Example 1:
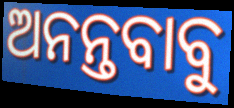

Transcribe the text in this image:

ଅନନ୍ତବାବୁ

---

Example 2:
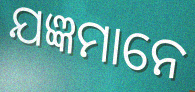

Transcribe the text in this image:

ଯଜ୍ଞମାନେ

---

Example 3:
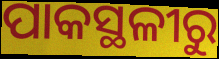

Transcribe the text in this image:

ପାକସ୍ଥଳୀରୁ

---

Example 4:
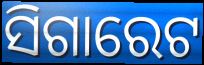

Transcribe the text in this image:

ସିଗାରେଟ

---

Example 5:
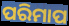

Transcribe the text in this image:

ପରିମାପ